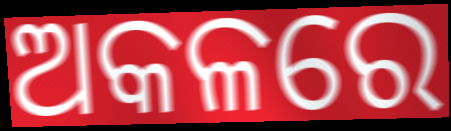
ଅକଳରେ